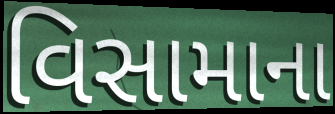
વિસામાના